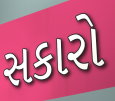
સકારો